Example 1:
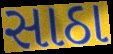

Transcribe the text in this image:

સાઠા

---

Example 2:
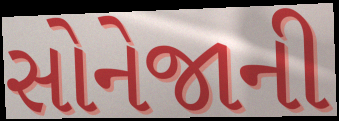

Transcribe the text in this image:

સોનેજાની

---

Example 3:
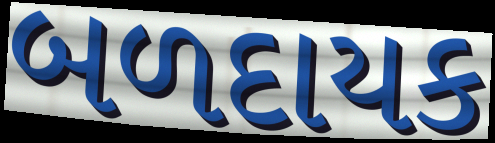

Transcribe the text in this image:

બળદાયક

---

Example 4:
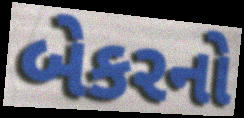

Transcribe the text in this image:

બેકરનો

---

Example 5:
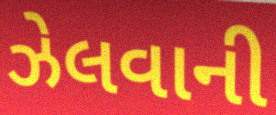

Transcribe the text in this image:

ઝેલવાની